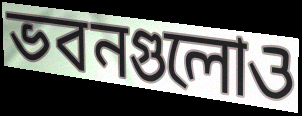
ভবনগুলোও